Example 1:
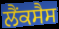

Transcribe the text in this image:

ਲੈਂਕਸੈਸ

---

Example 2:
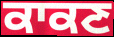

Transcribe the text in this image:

ਕਾਕਣ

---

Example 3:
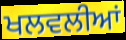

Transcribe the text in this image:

ਖਲਵਲੀਆਂ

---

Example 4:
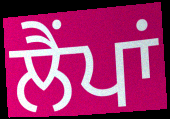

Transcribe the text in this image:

ਲੈਂਪਾਂ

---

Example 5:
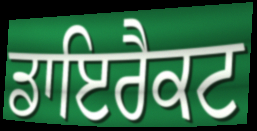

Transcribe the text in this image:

ਡਾਇਰੈਕਟ